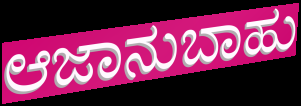
ಆಜಾನುಬಾಹು